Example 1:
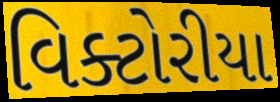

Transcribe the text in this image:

વિક્ટોરીયા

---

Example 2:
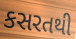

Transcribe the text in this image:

કસરતથી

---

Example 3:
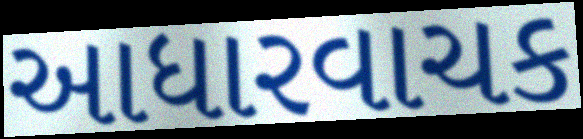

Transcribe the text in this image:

આધારવાચક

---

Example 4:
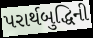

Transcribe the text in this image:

પરાર્થબુદ્ધિની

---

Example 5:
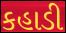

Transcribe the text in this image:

કહાડી